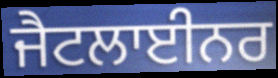
ਜੈਟਲਾਈਨਰ